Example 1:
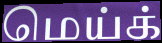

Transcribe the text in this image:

மெய்க்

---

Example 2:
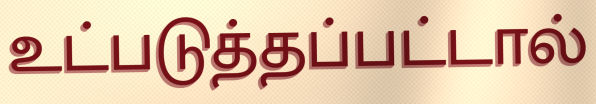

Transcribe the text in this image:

உட்படுத்தப்பட்டால்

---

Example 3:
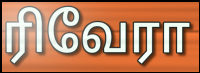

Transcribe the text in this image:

ரிவேரா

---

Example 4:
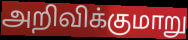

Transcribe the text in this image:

அறிவிக்குமாறு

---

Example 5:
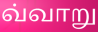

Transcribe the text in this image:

வ்வாறு